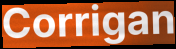
Corrigan